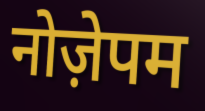
नोज़ेपम